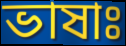
ভাষাঃ